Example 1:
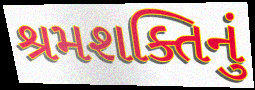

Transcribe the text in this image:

શ્રમશક્તિનું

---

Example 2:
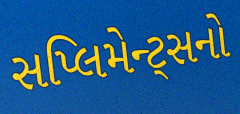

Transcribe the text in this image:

સપ્લિમેન્ટ્સનો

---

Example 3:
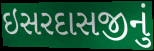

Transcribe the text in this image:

ઇસરદાસજીનું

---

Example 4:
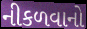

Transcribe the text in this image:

નીકળવાનો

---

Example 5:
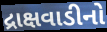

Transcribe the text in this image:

દ્રાક્ષવાડીનો